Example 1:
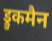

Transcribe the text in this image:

ड्रुकमैन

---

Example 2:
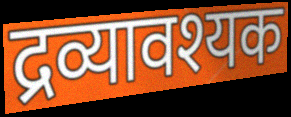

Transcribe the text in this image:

द्रव्यावश्यक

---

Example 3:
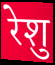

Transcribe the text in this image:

रेशु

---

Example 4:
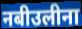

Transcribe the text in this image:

नबीउलीना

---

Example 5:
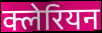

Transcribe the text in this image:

क्लेरियन